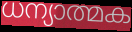
ധന്യാത്മക